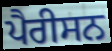
ਪੈਰੀਸਨ